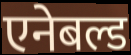
एनेबल्ड